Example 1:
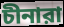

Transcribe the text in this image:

চীনারা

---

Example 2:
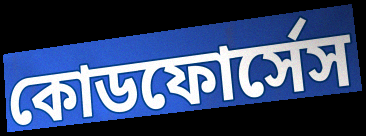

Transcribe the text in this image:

কোডফোর্সেস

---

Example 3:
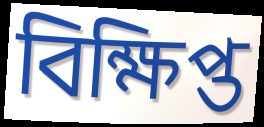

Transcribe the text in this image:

বিক্ষিপ্ত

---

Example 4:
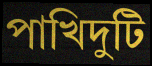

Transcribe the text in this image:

পাখিদুটি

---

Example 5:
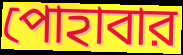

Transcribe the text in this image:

পোহাবার